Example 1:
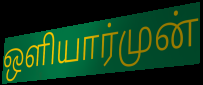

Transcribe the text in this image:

ஒளியார்முன்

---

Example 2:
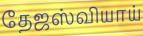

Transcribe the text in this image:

தேஜஸ்வியாய்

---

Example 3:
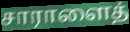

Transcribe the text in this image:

சாராளைத்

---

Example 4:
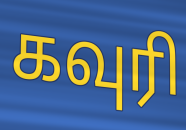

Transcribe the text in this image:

கவுரி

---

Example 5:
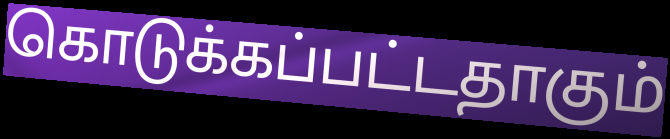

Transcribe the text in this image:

கொடுக்கப்பட்டதாகும்